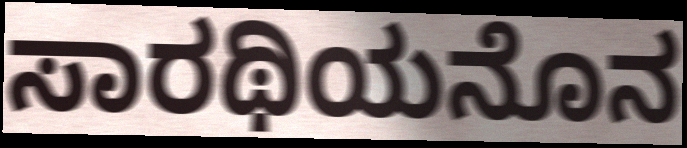
ಸಾರಥಿಯನೊನ